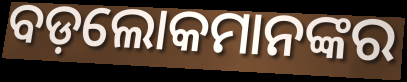
ବଡ଼ଲୋକମାନଙ୍କର